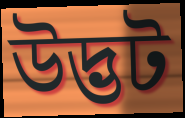
উদ্ভট